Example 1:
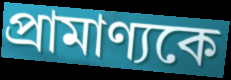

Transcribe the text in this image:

প্রামাণ্যকে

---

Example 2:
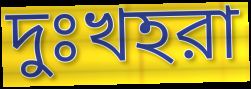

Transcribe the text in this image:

দুঃখহরা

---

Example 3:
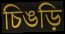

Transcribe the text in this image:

চিঙড়ি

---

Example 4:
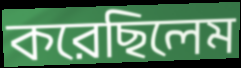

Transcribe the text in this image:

করেছিলেম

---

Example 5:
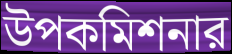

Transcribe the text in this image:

উপকমিশনার